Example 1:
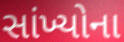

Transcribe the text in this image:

સાંખ્યોના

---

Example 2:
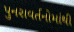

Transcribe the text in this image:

પુનરાવર્તનોમાંથી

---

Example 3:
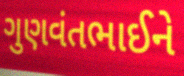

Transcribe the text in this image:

ગુણવંતભાઈને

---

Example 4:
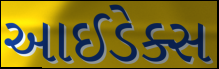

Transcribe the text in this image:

આઈડેક્સ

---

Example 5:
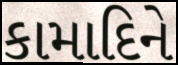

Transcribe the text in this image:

કામાદિને